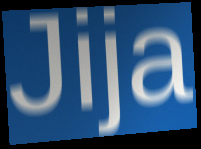
Jija